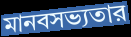
মানবসভ্যতার